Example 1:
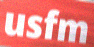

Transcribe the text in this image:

usfm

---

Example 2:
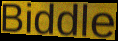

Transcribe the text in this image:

Biddle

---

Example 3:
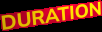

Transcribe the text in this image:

DURATION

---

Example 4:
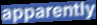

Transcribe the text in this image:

apparently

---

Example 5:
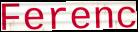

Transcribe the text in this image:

Ferenc